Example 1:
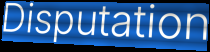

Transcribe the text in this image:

Disputation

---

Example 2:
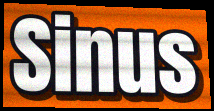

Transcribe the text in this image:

Sinus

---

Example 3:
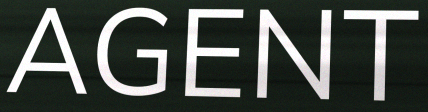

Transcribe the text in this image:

AGENT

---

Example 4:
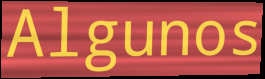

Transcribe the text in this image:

Algunos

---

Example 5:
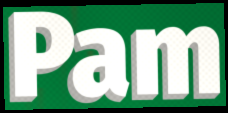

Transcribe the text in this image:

Pam